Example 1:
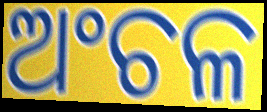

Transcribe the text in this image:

ଅଂଚଳ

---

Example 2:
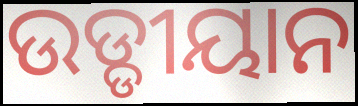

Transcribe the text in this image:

ଉଡ୍ଡୀୟାନ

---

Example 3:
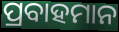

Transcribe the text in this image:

ପ୍ରବାହମାନ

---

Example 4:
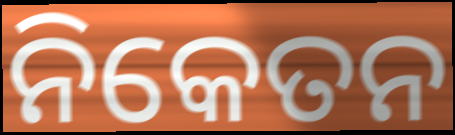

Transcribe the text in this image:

ନିକେତନ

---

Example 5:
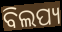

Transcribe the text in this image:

ବିଲପ୍ୟ